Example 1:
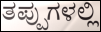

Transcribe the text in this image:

ತಪ್ಪುಗಳಲ್ಲಿ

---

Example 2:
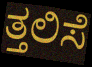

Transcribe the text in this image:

ತ್ತಲಿಸೆ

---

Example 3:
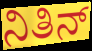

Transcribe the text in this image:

ನಿತಿನ್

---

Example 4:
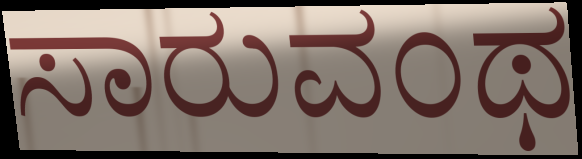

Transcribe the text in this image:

ಸಾರುವಂಥ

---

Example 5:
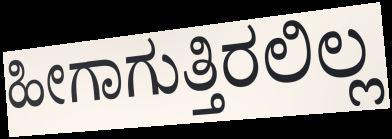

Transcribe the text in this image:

ಹೀಗಾಗುತ್ತಿರಲಿಲ್ಲ